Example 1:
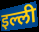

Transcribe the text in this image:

इल्ली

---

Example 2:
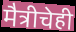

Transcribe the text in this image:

मैत्रीचेही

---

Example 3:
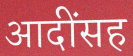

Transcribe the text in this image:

आदींसह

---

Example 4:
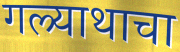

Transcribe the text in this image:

गल्याथाचा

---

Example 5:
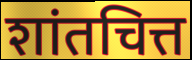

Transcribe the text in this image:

शांतचित्त